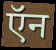
ऍन